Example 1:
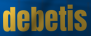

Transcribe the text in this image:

debetis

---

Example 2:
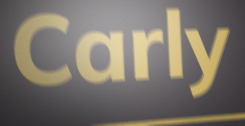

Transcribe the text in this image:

Carly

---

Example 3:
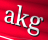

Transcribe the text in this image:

akg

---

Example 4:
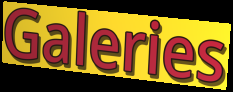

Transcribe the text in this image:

Galeries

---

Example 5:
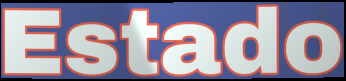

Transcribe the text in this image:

Estado